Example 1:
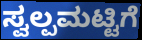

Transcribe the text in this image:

ಸ್ವಲ್ಪಮಟ್ಟಿಗೆ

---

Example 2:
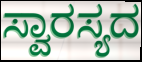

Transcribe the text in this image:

ಸ್ವಾರಸ್ಯದ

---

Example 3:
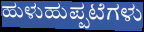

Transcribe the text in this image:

ಹುಳುಹುಪ್ಪಟೆಗಳು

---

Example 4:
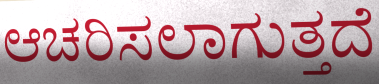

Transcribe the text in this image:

ಆಚರಿಸಲಾಗುತ್ತದೆ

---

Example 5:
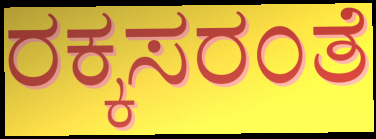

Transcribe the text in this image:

ರಕ್ಕಸರಂತೆ